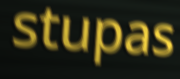
stupas